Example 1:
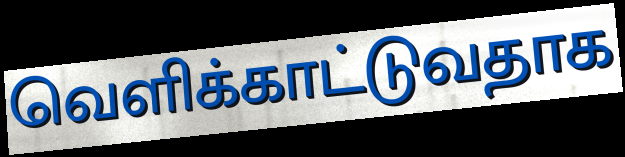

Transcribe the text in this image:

வெளிக்காட்டுவதாக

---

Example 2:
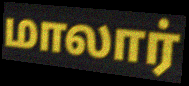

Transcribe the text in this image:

மாலார்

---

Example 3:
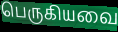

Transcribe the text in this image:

பெருகியவை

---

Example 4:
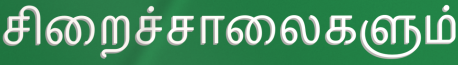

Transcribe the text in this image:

சிறைச்சாலைகளும்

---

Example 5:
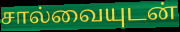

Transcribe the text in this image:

சால்வையுடன்